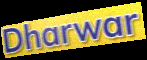
Dharwar